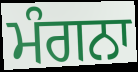
ਮੰਗਨਾ